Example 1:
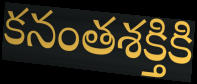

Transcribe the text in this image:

కనంతశక్తికి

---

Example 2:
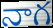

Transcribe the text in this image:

నాగ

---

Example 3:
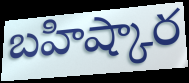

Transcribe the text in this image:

బహిష్కార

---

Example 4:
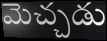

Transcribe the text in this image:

మెచ్చడు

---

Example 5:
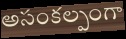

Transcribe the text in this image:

అసంకల్పంగా